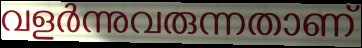
വളർന്നുവരുന്നതാണ്